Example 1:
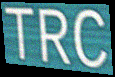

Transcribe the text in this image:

TRC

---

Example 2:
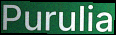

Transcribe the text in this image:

Purulia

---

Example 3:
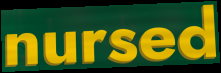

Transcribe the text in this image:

nursed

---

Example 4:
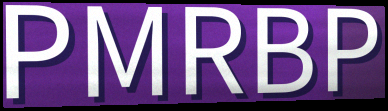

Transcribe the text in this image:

PMRBP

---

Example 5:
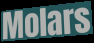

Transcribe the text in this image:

Molars